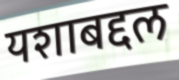
यशाबद्दल